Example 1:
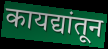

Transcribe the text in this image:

कायद्यांतून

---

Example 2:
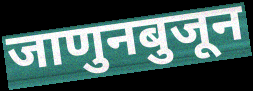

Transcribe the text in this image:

जाणुनबुजून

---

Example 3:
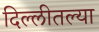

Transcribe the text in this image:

दिल्लीतल्या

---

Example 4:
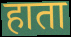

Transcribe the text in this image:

हाता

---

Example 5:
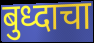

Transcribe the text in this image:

बुध्दाचा